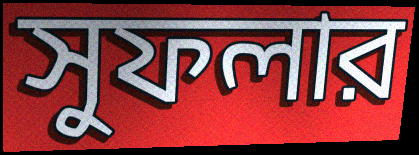
সুফলার